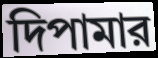
দিপামার